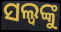
ସଲ୍ୱଙ୍କୁ